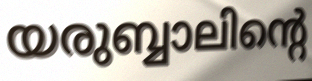
യരുബ്ബാലിന്റെ